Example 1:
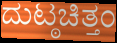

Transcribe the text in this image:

ದುಟ್ಠಚಿತ್ತಂ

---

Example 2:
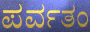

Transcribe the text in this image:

ಪರ್ವತಂ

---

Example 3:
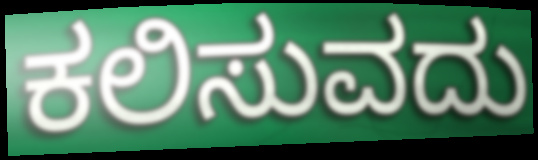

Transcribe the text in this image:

ಕಲಿಸುವದು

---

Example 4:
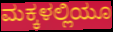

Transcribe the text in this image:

ಮಕ್ಕಳಲ್ಲಿಯೂ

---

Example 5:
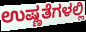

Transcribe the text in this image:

ಉಷ್ಣತೆಗಳಲ್ಲಿ